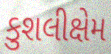
કુશલીક્ષેમ